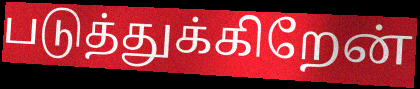
படுத்துக்கிறேன்